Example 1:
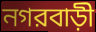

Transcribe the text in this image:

নগরবাড়ী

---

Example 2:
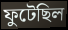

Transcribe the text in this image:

ফুটেছিল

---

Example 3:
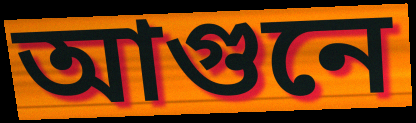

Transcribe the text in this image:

আগুনে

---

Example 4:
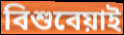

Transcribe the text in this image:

বিশুবেয়াই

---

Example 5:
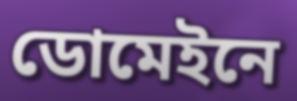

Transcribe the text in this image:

ডোমেইনে